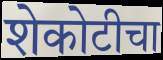
शेकोटीचा